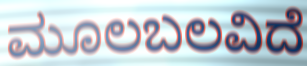
ಮೂಲಬಲವಿದೆ